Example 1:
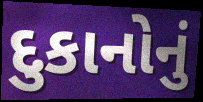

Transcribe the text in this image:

દુકાનોનું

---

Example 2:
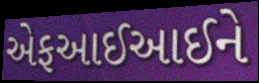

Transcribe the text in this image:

એફઆઈઆઈને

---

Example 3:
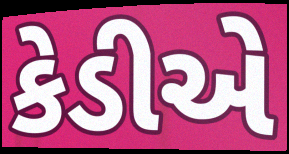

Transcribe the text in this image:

કેડીએ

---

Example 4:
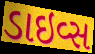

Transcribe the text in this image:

ડાઇવ્સ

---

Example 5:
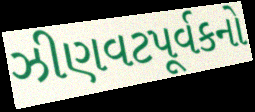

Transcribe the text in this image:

ઝીણવટપૂર્વકનો